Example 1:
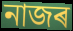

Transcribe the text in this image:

নাজৰ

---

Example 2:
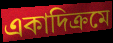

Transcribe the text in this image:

একাদিক্ৰমে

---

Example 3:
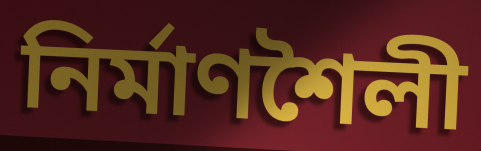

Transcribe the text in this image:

নিৰ্মাণশৈলী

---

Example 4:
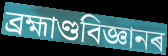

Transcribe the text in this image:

ব্ৰহ্মাণ্ডবিজ্ঞানৰ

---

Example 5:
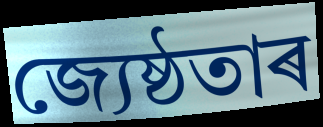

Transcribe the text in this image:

জ্যেষ্ঠতাৰ